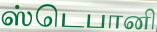
ஸ்டெபானி